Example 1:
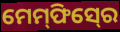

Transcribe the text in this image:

ମେମ୍‍ଫିସ୍‍ରେ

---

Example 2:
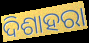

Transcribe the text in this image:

ଦିଶାହରା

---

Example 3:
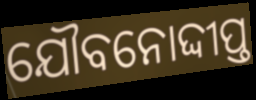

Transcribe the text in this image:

ଯୌବନୋଦ୍ଦୀପ୍ତ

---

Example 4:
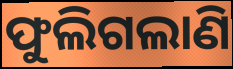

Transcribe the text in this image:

ଫୁଲିଗଲାଣି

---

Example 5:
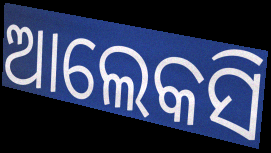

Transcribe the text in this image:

ଆଲେକସି